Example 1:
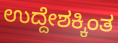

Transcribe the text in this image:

ಉದ್ದೇಶಕ್ಕಿಂತ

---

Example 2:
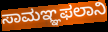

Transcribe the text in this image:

ಸಾಮಞ್ಞಫಲಾನಿ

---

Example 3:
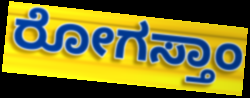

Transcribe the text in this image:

ರೋಗಸ್ತಾಂ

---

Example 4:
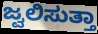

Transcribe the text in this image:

ಜ್ವಲಿಸುತ್ತಾ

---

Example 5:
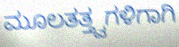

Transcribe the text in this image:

ಮೂಲತತ್ತ್ವಗಳಿಗಾಗಿ